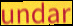
undar